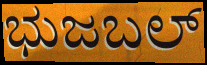
ಭುಜಬಲ್